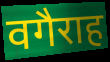
वगैराह